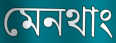
মেনথাং